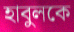
হাবুলকে